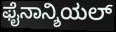
ಫೈನಾನ್ಶಿಯಲ್